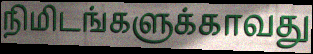
நிமிடங்களுக்காவது